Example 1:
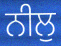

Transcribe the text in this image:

ਨੀਲੁ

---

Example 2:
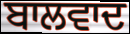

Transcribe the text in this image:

ਬਾਲਵਾਦ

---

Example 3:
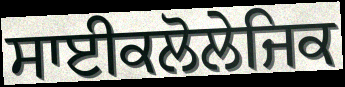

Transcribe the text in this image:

ਸਾਈਕਲੋਲੇਜਿਕ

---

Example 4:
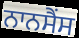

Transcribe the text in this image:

ਨਾਨਸੈਂਸ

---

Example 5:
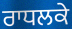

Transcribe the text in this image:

ਰਾਧਲਕੇ